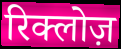
रिक्लोज़